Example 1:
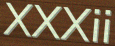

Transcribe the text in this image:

XXXii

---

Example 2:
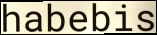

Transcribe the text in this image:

habebis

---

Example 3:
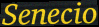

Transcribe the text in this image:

Senecio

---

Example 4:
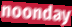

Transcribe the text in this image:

noonday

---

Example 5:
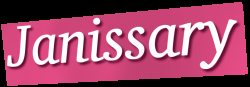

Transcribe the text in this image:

Janissary